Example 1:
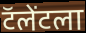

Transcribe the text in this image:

टॅलेंटला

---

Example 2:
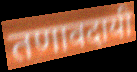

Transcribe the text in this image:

तणावदायी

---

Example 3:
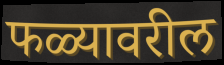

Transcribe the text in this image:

फळ्यावरील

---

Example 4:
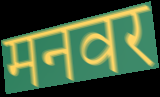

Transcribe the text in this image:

मनवर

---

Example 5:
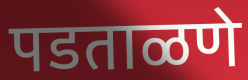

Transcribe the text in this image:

पडताळणे